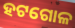
ହଟଗୋଳ